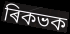
ৰিকভক